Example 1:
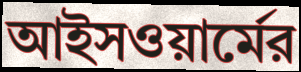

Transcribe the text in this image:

আইসওয়ার্মের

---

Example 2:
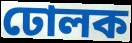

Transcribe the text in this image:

ঢোলক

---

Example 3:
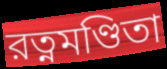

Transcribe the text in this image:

রত্নমণ্ডিতা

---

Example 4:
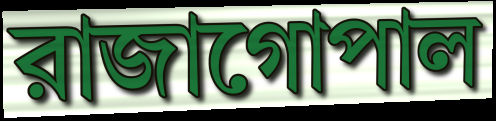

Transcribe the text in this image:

রাজাগোপাল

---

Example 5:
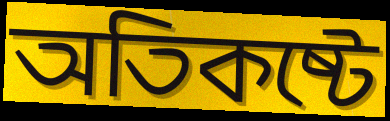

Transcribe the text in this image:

অতিকষ্টে